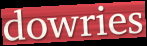
dowries